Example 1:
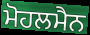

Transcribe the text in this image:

ਮੋਹਲਮੈਨ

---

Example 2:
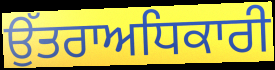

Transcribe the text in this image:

ਉੱਤਰਾਅਧਿਕਾਰੀ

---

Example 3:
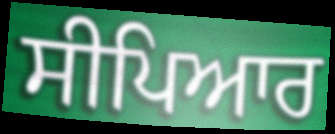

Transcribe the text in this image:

ਸੀਪਿਆਰ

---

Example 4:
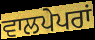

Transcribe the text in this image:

ਵਾਲਪੇਪਰਾਂ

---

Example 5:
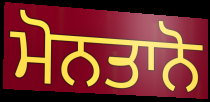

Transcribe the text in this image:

ਮੋਨਤਾਨੋ